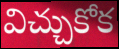
విచ్చుకోక